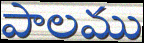
పాలము